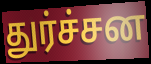
துர்ச்சன